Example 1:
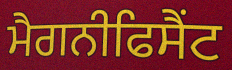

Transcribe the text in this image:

ਮੈਗਨੀਫਿਸੈਂਟ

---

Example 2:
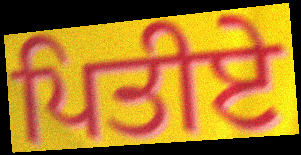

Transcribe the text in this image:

ਪਿਤੀਏ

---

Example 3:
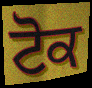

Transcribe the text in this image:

ਟੋਕ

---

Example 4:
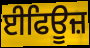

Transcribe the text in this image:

ਈਫਿਊਜ਼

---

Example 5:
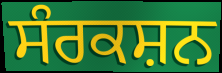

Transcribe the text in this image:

ਸੰਰਕਸ਼ਨ